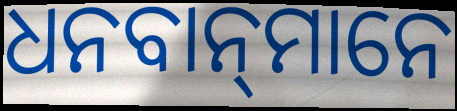
ଧନବାନ୍‍ମାନେ